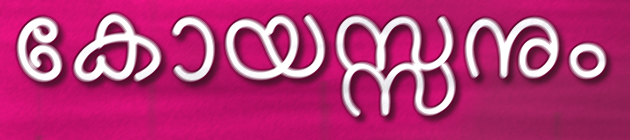
കോയസ്സനും